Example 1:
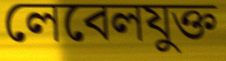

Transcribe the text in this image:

লেবেলযুক্ত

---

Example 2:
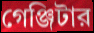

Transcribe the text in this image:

গেঞ্জিটার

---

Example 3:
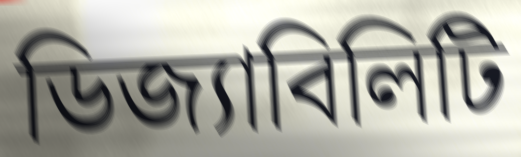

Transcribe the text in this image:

ডিজ্যাবিলিটি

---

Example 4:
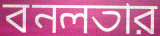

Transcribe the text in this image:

বনলতার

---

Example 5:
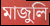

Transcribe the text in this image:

মাজুলি